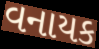
વનાયક